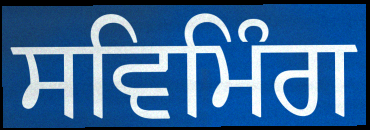
ਸਵਿਮਿੰਗ